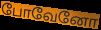
போவேனோ